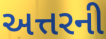
અત્તરની